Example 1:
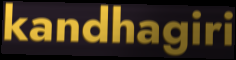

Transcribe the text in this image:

kandhagiri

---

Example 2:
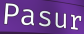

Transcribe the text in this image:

Pasur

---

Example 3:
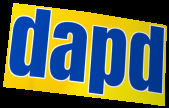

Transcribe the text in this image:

dapd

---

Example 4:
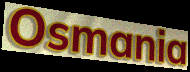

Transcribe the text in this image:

Osmania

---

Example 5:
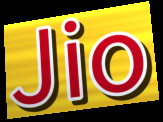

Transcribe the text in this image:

Jio